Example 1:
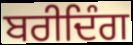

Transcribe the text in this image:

ਬਰੀਦਿੰਗ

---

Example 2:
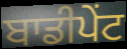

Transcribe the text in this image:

ਬਾਡੀਪੇਂਟ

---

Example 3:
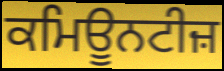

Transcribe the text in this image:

ਕਮਿਊਨਟੀਜ਼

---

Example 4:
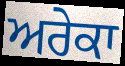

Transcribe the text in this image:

ਅਰੇਕਾ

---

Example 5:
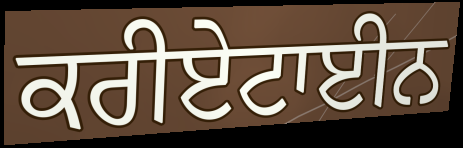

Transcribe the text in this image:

ਕਰੀਏਟਾਈਨ